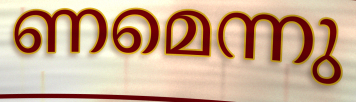
ണമെന്നു